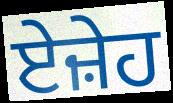
ਏਜ਼ੇਹ